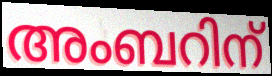
അംബറിന്